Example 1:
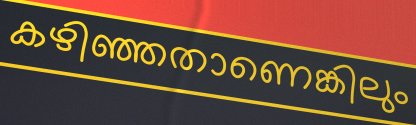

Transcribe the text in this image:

കഴിഞ്ഞതാണെങ്കിലും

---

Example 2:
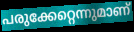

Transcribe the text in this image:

പരുക്കേറ്റെന്നുമാണ്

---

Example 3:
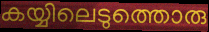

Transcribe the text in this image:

കയ്യിലെടുത്തൊരു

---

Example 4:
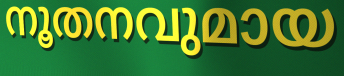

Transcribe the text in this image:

നൂതനവുമായ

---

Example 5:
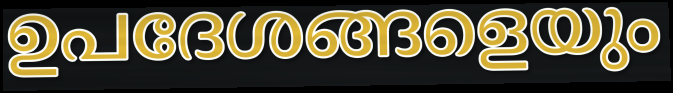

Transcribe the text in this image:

ഉപദേശങ്ങളെയും